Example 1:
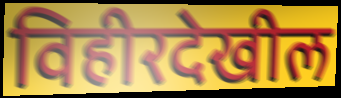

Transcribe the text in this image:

विहीरदेखील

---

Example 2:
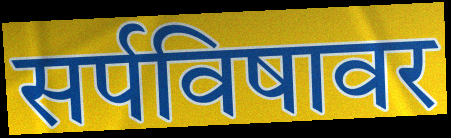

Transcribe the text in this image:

सर्पविषावर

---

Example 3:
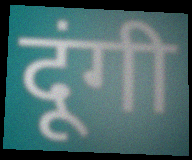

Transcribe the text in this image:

दूंगी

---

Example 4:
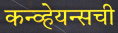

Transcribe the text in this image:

कन्व्हेयन्सची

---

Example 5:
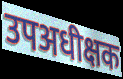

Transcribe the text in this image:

उपअधीक्षक